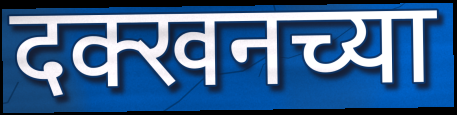
दक्खनच्या